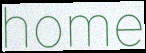
home